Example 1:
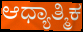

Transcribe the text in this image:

ಆಧ್ಯಾತ್ಮಿಕ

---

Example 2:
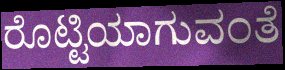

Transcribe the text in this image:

ರೊಟ್ಟಿಯಾಗುವಂತೆ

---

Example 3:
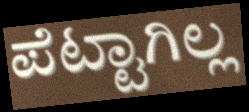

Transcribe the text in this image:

ಪೆಟ್ಟಾಗಿಲ್ಲ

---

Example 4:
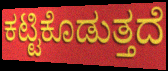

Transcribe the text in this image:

ಕಟ್ಟಿಕೊಡುತ್ತದೆ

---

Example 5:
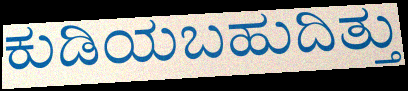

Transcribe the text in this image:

ಕುಡಿಯಬಹುದಿತ್ತು